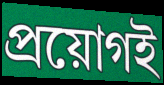
প্রয়োগই